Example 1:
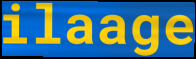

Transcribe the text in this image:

ilaage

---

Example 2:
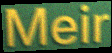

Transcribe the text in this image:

Meir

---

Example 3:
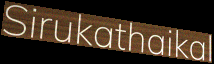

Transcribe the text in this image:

Sirukathaikal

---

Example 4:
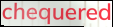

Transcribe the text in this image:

chequered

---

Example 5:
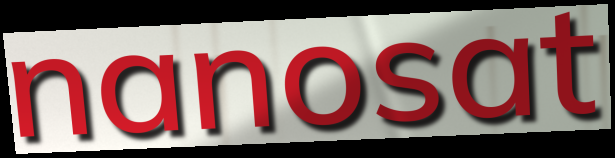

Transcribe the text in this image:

nanosat